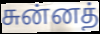
சுன்னத்